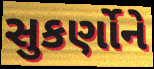
સુકર્ણોને